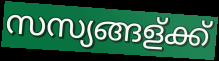
സസ്യങ്ങള്ക്ക്